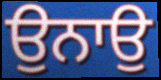
ਉਨਾਉ